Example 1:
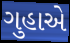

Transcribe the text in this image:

ગુહાએ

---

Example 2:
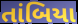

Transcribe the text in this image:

તાંબિયા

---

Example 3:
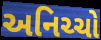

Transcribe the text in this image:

અનિચ્ચો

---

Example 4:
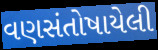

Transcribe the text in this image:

વણસંતોષાયેલી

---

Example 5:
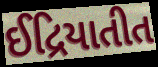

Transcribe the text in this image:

ઈદ્રિયાતીત